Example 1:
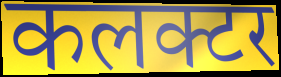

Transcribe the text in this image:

कलक्टर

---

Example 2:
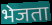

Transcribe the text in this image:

भेजता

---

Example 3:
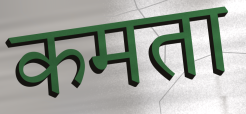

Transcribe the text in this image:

कमता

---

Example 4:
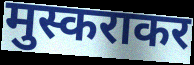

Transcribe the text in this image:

मुस्कराकर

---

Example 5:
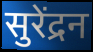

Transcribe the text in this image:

सुरेंद्रन